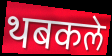
थबकले